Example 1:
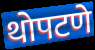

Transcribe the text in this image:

थोपटणे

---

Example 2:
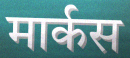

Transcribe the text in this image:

मार्कस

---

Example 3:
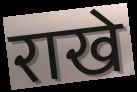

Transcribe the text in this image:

राखे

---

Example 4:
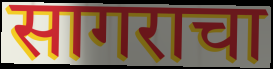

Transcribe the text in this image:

सागराचा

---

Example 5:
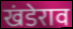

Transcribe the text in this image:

खंडेराव